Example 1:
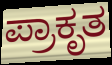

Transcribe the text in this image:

ಪ್ರಾಕೃತ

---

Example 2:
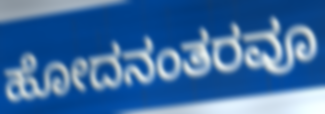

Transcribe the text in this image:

ಹೋದನಂತರವೂ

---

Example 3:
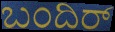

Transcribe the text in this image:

ಬಂದಿರ್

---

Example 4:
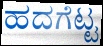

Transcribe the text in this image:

ಹದಗೆಟ್ಟ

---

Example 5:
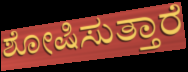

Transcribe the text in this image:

ಶೋಷಿಸುತ್ತಾರೆ